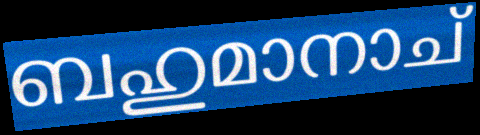
ബഹുമാനാച്